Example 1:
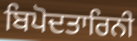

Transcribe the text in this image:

ਬਿਪੋਦਤਾਰਿਨੀ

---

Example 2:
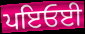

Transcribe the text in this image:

ਪਇਓਈ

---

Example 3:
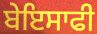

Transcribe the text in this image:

ਬੇਇਸਾਫੀ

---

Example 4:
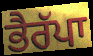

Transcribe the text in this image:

ਭੈਰੱਪਾ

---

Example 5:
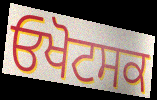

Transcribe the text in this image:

ਓਖੋਟਸਕ